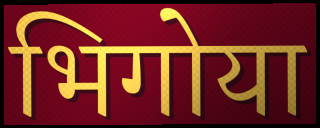
भिगोया